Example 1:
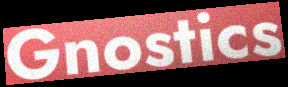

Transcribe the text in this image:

Gnostics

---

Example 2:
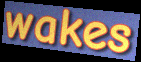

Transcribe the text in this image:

wakes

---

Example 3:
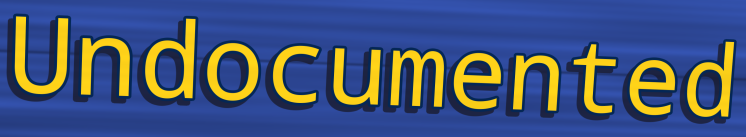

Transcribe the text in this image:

Undocumented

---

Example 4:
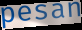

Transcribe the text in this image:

pesan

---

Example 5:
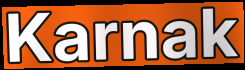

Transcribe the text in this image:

Karnak